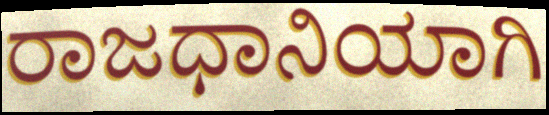
ರಾಜಧಾನಿಯಾಗಿ